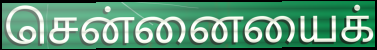
சென்னையைக்